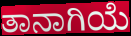
ತಾನಾಗಿಯೆ